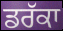
ਡਰੱਕਾ